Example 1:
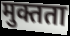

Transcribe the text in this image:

मुक्तता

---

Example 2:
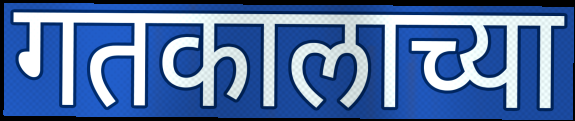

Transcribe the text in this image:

गतकालाच्या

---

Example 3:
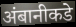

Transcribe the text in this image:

अंबानीकडे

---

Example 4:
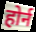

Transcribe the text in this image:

होर्न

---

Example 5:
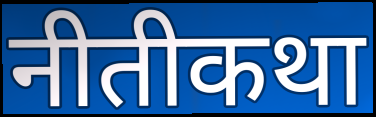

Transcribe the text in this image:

नीतीकथा